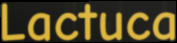
Lactuca